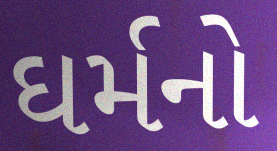
ઘર્મનો